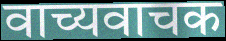
वाच्यवाचक